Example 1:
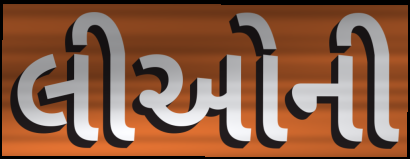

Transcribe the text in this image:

લીઓની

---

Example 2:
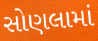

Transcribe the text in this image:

સોણલામાં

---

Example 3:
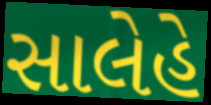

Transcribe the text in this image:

સાલેહે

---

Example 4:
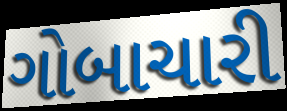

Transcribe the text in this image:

ગોબાચારી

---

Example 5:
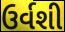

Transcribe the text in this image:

ઉર્વશી